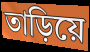
তাড়িয়ে